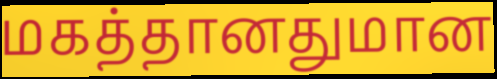
மகத்தானதுமான